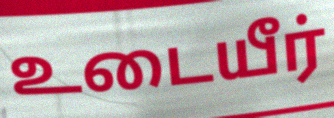
உடையீர்